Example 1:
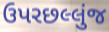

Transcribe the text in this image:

ઉપરછલ્લુંજ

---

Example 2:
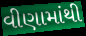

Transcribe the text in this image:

વીણામાંથી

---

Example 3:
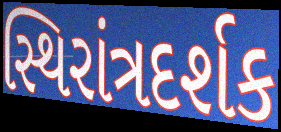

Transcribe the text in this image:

સ્થિરાંત્રદર્શક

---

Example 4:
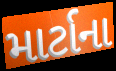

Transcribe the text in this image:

માર્ટાના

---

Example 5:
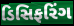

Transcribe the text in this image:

ડિસિફરિંગ